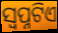
ସ୍ବପ୍ନଟିଏ